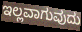
ಇಲ್ಲವಾಗುವುದು